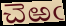
చెఱఁ